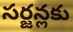
సర్జన్లకు